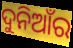
ଦୁନିଆଁର